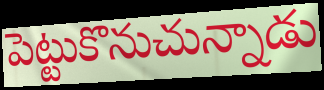
పెట్టుకొనుచున్నాడు